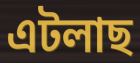
এটলাছ